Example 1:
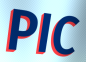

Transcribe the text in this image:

PIC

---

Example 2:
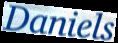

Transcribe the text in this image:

Daniels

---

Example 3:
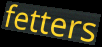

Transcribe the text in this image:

fetters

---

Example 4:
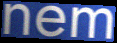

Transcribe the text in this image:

nem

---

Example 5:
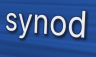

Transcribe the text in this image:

synod